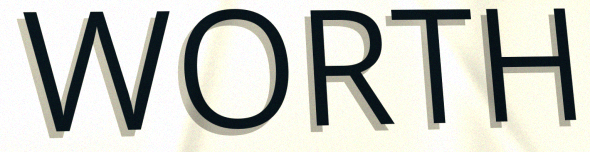
WORTH